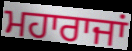
ਮਹਾਰਾਜਾਂ